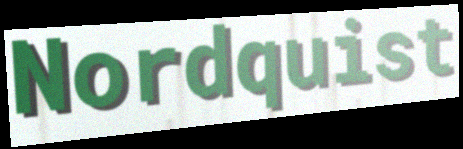
Nordquist